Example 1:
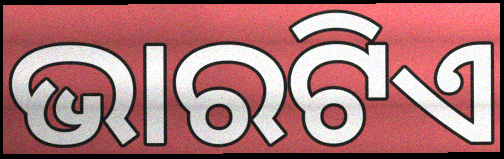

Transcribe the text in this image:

ଭାରଟିଏ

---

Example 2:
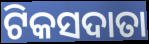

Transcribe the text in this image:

ଟିକସଦାତା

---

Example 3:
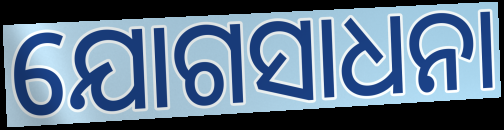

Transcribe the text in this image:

ଯୋଗସାଧନା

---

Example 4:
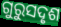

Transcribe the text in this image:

ଗୁରୁସଦୃଶ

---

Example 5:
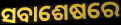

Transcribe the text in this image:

ସବାଶେଷରେ